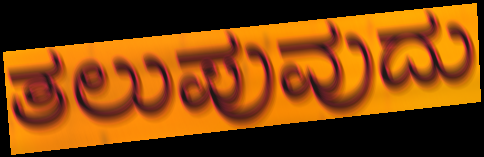
ತಲುಪುವುದು